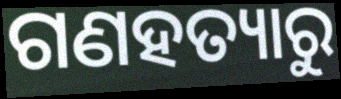
ଗଣହତ୍ୟାରୁ